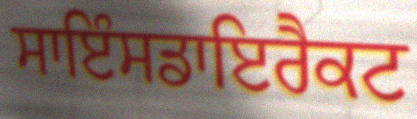
ਸਾਇੰਸਡਾਇਰੈਕਟ